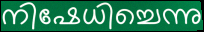
നിഷേധിച്ചെന്നു